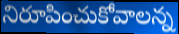
నిరూపించుకోవాలన్న